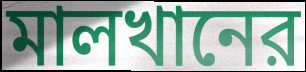
মালখানের